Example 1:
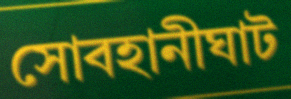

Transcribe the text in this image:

সোবহানীঘাট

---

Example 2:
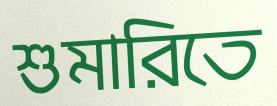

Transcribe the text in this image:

শুমারিতে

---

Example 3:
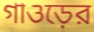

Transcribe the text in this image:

গাওড়ের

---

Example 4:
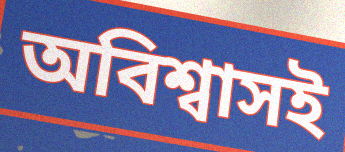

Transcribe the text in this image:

অবিশ্বাসই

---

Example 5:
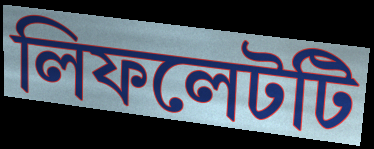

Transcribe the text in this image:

লিফলেটটি